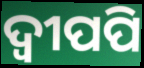
ଦ୍ବୀପପି